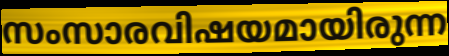
സംസാരവിഷയമായിരുന്ന